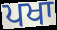
ਪਖਾ